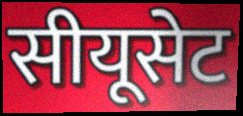
सीयूसेट